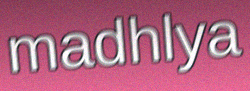
madhlya